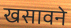
खसावने